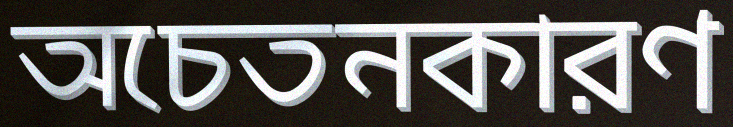
অচেতনকারণ